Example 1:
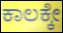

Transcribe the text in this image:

ಕಾಲಕ್ಕೇ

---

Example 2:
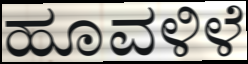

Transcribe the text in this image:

ಹೂವಳಿಳೆ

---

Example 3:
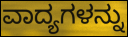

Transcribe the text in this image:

ವಾದ್ಯಗಳನ್ನು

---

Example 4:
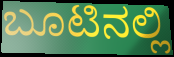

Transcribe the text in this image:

ಬೂಟಿನಲ್ಲಿ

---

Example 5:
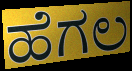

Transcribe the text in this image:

ಹೆಗಲ